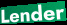
Lender